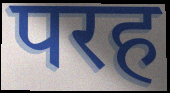
परह